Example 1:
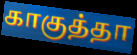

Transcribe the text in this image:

காகுத்தா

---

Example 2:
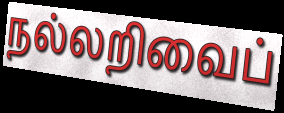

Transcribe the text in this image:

நல்லறிவைப்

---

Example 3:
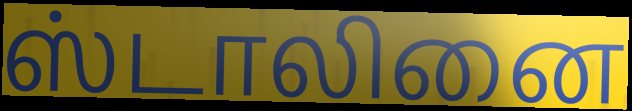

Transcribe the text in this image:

ஸ்டாலினை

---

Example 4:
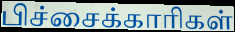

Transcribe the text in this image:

பிச்சைக்காரிகள்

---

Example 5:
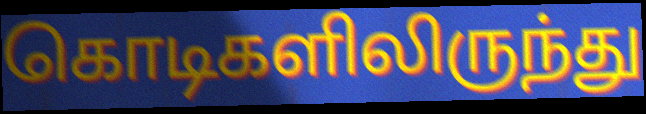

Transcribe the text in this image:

கொடிகளிலிருந்து